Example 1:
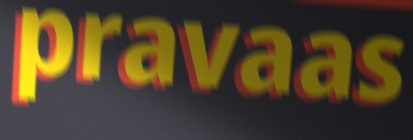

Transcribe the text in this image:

pravaas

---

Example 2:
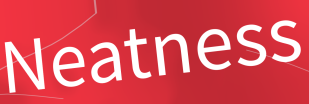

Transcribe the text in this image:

Neatness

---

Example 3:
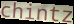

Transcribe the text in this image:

chintz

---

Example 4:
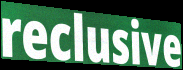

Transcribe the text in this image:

reclusive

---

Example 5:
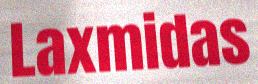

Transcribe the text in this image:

Laxmidas